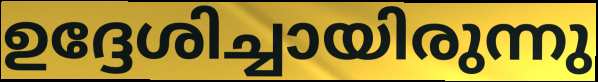
ഉദ്ദേശിച്ചായിരുന്നു